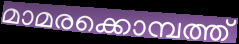
മാമരക്കൊമ്പത്ത്